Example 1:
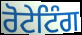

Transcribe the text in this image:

ਰੋਟੇਟਿੰਗ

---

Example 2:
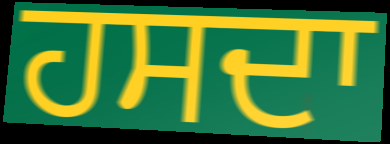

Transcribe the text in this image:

ਹਸਦਾ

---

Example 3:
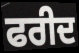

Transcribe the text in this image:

ਫਰੀਦ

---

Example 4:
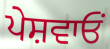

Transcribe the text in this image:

ਪੇਸ਼ਵਾਓਂ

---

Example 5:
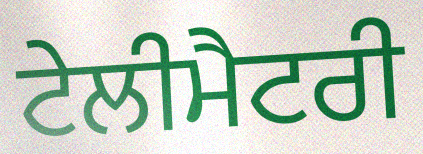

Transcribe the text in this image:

ਟੇਲੀਮੈਟਰੀ